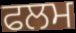
ਫਲਮ